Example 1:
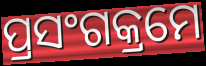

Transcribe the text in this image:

ପ୍ରସଂଗକ୍ରମେ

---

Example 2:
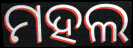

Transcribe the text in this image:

ମହଲ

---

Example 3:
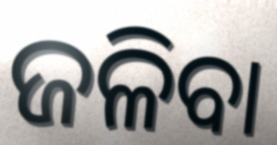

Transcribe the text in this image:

ଜଳିବା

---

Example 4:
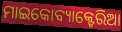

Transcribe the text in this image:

ମାଇକୋବ୍ୟାକ୍ଟେରିଆ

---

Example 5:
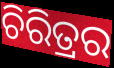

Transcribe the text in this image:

ଚିରିତ୍ରର